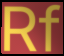
Rf